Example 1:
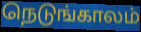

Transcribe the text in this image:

நெடுங்காலம்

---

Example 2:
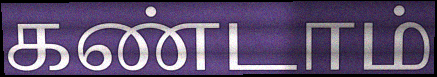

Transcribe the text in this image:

கண்டாம்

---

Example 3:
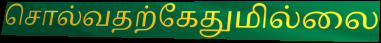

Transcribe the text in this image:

சொல்வதற்கேதுமில்லை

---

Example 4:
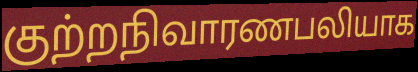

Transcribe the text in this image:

குற்றநிவாரணபலியாக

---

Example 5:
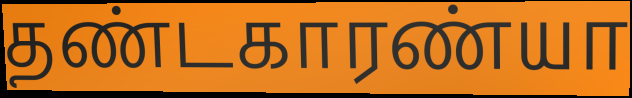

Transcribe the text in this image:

தண்டகாரண்யா